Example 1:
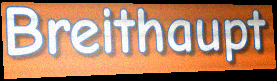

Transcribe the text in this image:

Breithaupt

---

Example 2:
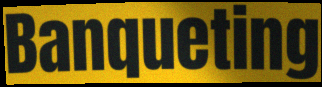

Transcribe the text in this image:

Banqueting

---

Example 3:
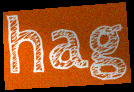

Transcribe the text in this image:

hag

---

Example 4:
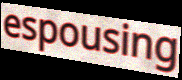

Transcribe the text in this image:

espousing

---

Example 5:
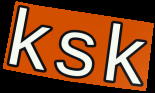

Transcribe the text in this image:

ksk